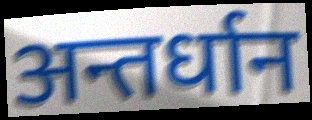
अन्तर्धान